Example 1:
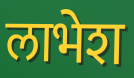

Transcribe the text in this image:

लाभेश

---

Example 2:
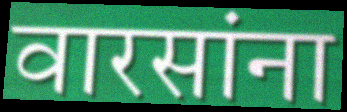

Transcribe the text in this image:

वारसांना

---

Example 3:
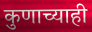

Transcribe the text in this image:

कुणाच्याही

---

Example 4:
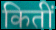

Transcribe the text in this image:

कितीं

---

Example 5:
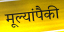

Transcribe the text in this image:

मूल्यांपैकी